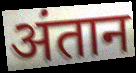
अंतान